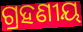
ଗ୍ରହଣୀୟ